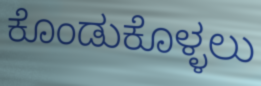
ಕೊಂಡುಕೊಳ್ಳಲು